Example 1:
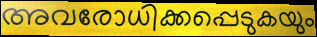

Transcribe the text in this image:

അവരോധിക്കപ്പെടുകയും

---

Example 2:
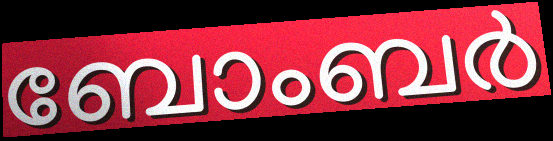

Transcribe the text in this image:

ബോംബർ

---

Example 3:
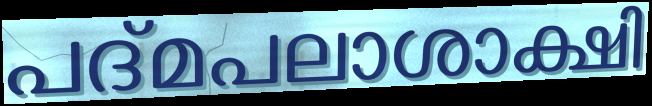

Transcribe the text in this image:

പദ്മപലാശാക്ഷി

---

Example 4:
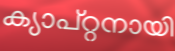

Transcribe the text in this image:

ക്യാപ്റ്റനായി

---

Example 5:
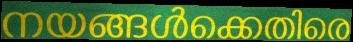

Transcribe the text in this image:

നയങ്ങൾക്കെതിരെ